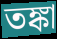
তঙ্কা